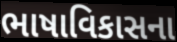
ભાષાવિકાસના